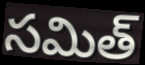
సమిత్